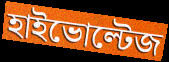
হাইভোল্টেজ